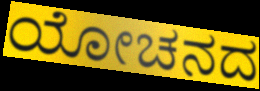
ಯೋಚನದ